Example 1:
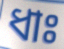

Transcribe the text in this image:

ধাঃ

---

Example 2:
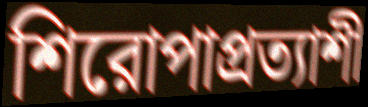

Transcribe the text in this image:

শিরোপাপ্রত্যাশী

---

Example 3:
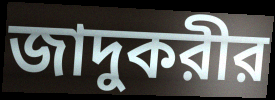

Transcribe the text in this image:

জাদুকরীর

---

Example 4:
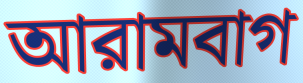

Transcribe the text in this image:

আরামবাগ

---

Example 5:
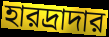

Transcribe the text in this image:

হারদ্রাদার